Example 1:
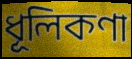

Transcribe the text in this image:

ধূলিকণা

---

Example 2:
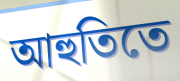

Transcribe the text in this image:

আহুতিতে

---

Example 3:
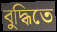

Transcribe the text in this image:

বুদ্ধিতে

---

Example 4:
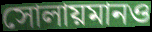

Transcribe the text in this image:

সোলায়মানও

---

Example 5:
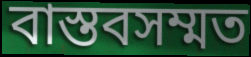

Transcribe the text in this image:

বাস্তবসম্মত